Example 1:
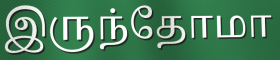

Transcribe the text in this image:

இருந்தோமா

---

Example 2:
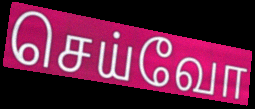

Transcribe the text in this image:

செய்வோ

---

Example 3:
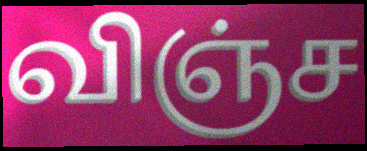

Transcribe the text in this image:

விஞ்ச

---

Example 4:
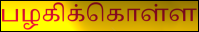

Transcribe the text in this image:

பழகிக்கொள்ள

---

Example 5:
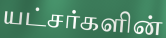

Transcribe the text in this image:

யட்சர்களின்